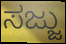
ಸಜ್ಜು